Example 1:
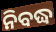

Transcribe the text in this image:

ନିବଦ୍ଧ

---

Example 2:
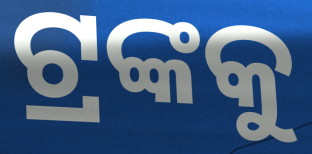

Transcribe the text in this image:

ଟ୍ରଙ୍କକୁ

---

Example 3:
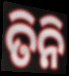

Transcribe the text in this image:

ତିନି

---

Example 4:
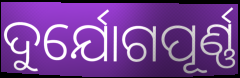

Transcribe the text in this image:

ଦୁର୍ଯୋଗପୂର୍ଣ୍ଣ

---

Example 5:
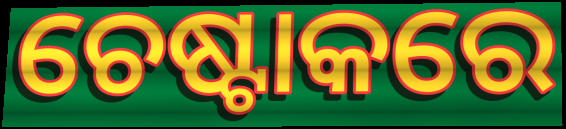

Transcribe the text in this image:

ଚେଷ୍ଟାକରେ